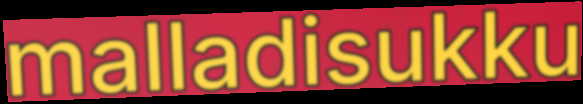
malladisukku